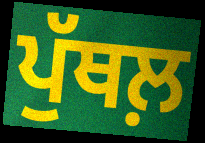
ਪੁੱਥਲ਼